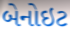
બેનોઇટ